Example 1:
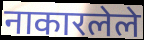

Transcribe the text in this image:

नाकारलेले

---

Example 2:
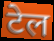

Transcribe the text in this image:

टेल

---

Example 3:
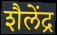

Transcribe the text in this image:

शैलेंद्र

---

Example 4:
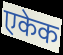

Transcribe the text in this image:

एकेक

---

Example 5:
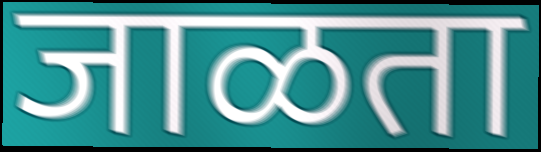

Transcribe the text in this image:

जाळता